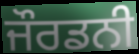
ਜੌਰਡਨੀ